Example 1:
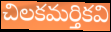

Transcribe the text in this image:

చిలకమర్తికవి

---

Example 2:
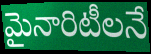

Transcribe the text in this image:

మైనారిటీలనే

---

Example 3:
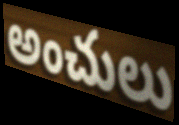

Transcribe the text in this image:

అంచులు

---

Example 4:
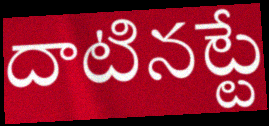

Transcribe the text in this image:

దాటినట్టే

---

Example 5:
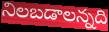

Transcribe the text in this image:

నిలబడాలన్నది